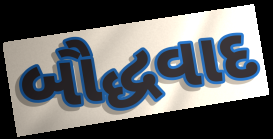
બૌદ્ધવાદ